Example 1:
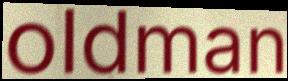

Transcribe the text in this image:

oldman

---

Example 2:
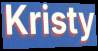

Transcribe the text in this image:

Kristy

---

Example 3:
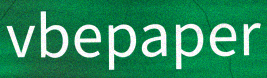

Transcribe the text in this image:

vbepaper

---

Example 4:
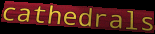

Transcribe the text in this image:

cathedrals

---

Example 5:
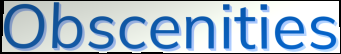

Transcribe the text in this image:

Obscenities